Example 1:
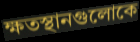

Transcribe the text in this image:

ক্ষতস্থানগুলোকে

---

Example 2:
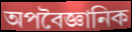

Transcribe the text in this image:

অপবৈজ্ঞানিক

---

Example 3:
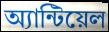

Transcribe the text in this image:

অ্যান্টিয়েল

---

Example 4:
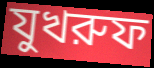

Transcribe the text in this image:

যুখরুফ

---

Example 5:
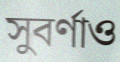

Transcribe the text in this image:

সুবর্ণাও